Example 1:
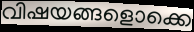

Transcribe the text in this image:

വിഷയങ്ങളൊക്കെ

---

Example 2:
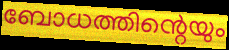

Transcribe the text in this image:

ബോധത്തിന്റെയും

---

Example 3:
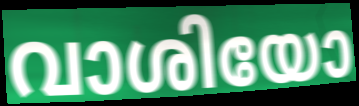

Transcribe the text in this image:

വാശിയോ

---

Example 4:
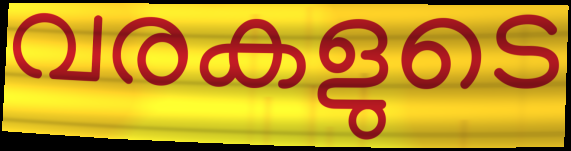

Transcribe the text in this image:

വരകളുടെ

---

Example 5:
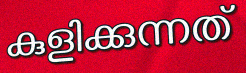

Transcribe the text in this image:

കുളിക്കുന്നത്